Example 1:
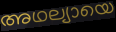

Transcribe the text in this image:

അഥല്യായെ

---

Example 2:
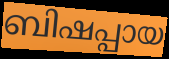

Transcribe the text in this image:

ബിഷപ്പായ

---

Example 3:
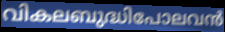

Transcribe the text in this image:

വികലബുദ്ധിപോലവൻ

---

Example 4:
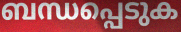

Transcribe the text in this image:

ബന്ധപ്പെടുക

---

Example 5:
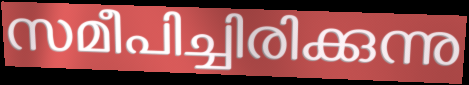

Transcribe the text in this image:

സമീപിച്ചിരിക്കുന്നു